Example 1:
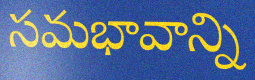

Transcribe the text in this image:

సమభావాన్ని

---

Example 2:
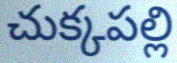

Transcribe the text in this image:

చుక్కపల్లి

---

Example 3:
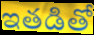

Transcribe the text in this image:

ఇతడితో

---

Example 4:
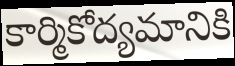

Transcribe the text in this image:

కార్మికోద్యమానికి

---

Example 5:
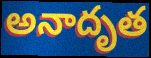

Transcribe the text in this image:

అనాదృత